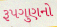
રૂપગુણનો